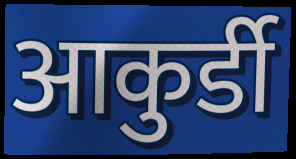
आकुर्डी